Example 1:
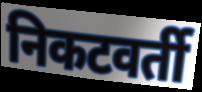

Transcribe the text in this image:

निकटवर्ती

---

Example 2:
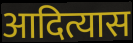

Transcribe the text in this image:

आदित्यास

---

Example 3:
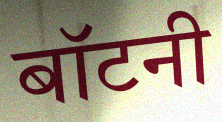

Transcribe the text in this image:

बॉटनी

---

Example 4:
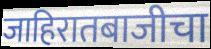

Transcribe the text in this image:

जाहिरातबाजीचा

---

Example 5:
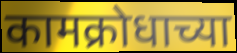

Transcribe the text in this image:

कामक्रोधाच्या